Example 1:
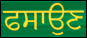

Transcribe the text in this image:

ਫਸਾਉਣ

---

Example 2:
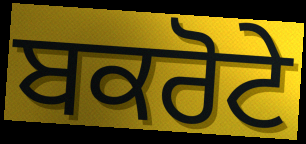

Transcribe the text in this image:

ਬਕਰੋਟੇ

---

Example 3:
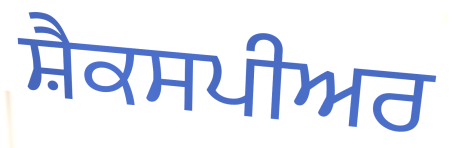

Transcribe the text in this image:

ਸ਼ੈਕਸਪੀਅਰ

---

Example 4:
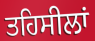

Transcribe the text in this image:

ਤਹਿਸੀਲਾਂ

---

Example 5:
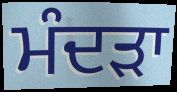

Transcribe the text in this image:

ਮੰਦੜਾ